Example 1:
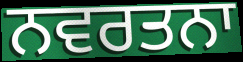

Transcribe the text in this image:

ਨਵਰਤਨਾ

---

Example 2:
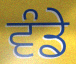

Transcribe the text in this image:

ਵੰਡੇ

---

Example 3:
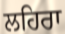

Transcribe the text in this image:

ਲਹਿਰਾ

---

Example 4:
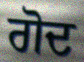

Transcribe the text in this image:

ਗੋਦ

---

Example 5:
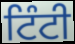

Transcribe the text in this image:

ਟਿੰਟੀ